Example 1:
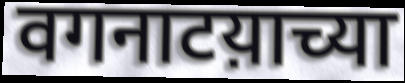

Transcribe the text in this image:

वगनाटय़ाच्या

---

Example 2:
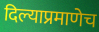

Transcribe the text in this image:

दिल्याप्रमाणेच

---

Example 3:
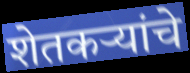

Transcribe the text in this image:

शेतकर्‍यांचे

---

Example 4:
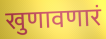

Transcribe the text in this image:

खुणावणारं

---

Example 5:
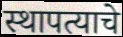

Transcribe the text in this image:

स्थापत्याचे